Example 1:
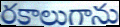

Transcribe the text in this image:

రకాలుగాను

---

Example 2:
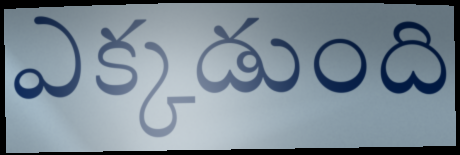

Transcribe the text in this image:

ఎక్కడుంది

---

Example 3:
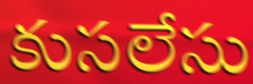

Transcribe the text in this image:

కుసలేసు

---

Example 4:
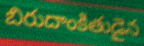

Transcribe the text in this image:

బిరుదాంకితుడైన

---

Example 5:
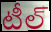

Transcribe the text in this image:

టీల్